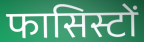
फासिस्टों